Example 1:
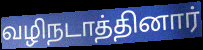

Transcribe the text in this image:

வழிநடாத்தினார்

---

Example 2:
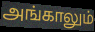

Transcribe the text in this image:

அங்காலும்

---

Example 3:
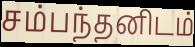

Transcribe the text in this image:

சம்பந்தனிடம்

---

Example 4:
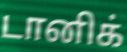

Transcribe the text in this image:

டானிக்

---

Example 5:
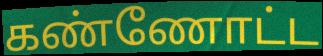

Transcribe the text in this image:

கண்ணோட்ட